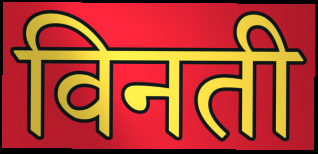
विनती